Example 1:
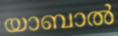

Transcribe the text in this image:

യാബാൽ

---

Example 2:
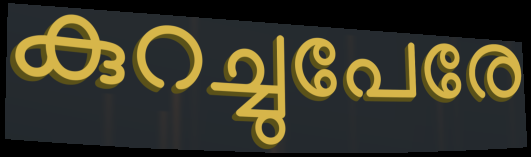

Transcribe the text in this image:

കുറച്ചുപേരേ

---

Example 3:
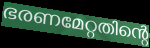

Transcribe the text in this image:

ഭരണമേറ്റതിന്റെ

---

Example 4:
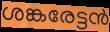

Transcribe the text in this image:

ശങ്കരേട്ടൻ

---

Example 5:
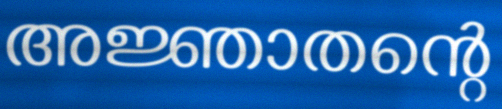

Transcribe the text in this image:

അജ്ഞാതന്റെ